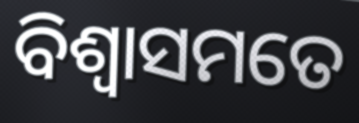
ବିଶ୍ୱାସମତେ